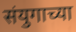
संयुगाच्या